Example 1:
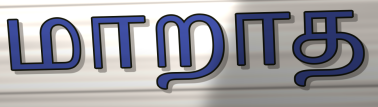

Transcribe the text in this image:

மாறாத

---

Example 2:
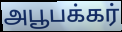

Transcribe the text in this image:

அபூபக்கர்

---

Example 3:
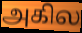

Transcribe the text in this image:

அகில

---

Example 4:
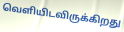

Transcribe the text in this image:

வெளியிடவிருக்கிறது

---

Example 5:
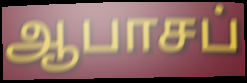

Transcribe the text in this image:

ஆபாசப்